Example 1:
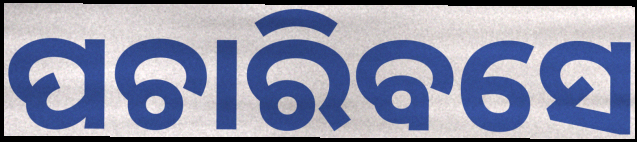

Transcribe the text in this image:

ପଚାରିବସେ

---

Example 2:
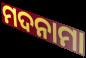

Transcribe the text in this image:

ମଦନାମା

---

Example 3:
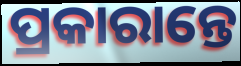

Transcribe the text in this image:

ପ୍ରକାରାନ୍ତେ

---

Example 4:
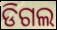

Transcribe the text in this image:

ଡିଗଲ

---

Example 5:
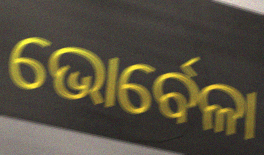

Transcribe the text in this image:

ଭୋର୍ବେଳା